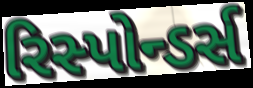
રિસ્પોન્ડર્સ